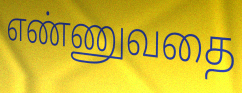
எண்ணுவதை